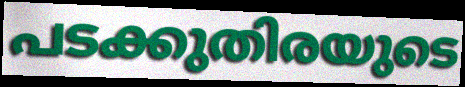
പടക്കുതിരയുടെ